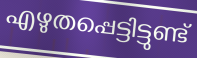
എഴുതപ്പെട്ടിട്ടുണ്ട്